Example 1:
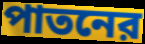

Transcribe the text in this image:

পাতনের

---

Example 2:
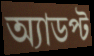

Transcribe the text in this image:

অ্যাডপ্ট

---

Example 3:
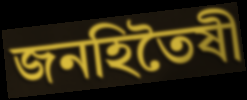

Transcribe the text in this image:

জনহিতৈষী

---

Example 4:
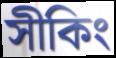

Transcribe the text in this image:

সীকিং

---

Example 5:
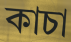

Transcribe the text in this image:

কাচা